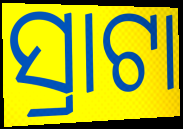
ସ୍ରାଟା